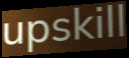
upskill